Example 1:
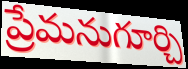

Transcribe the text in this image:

ప్రేమనుగూర్చి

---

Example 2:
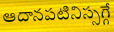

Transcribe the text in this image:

ఆదానపటినిస్సగ్గే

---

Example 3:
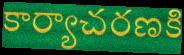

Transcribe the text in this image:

కార్యాచరణకి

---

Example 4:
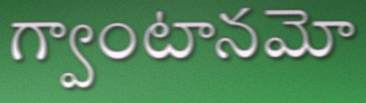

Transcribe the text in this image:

గ్వాంటానమో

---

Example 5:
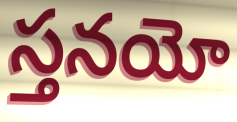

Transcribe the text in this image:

స్తనయో